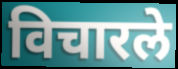
विचारले